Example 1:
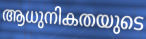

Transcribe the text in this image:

ആധുനികതയുടെ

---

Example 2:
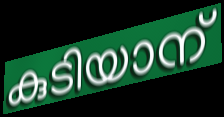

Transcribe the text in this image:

കുടിയാന്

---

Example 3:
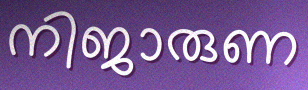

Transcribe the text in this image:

നിജാരുണ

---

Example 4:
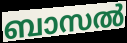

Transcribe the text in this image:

ബാസൽ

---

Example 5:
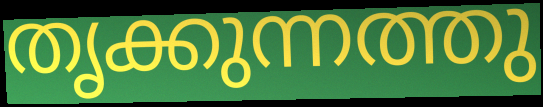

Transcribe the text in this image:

തൃക്കുന്നത്തു